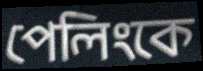
পেলিংকে